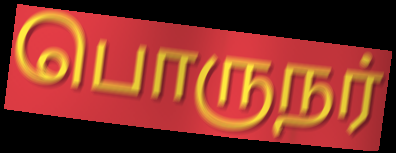
பொருநர்